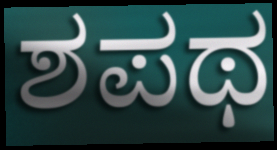
ಶಪಥ